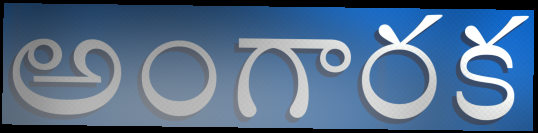
అంగారక